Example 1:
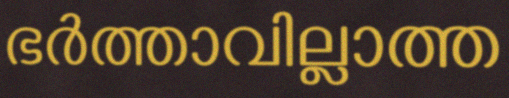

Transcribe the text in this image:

ഭർത്താവില്ലാത്ത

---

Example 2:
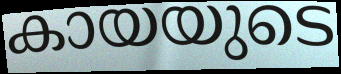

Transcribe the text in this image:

കായയുടെ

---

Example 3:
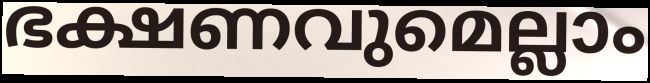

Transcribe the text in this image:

ഭക്ഷണവുമെല്ലാം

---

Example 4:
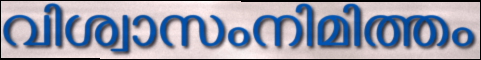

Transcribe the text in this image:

വിശ്വാസംനിമിത്തം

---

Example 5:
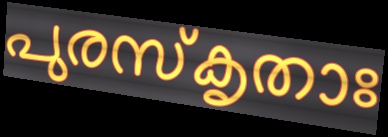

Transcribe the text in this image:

പുരസ്കൃതാഃ